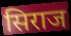
सिराज